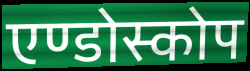
एण्डोस्कोप